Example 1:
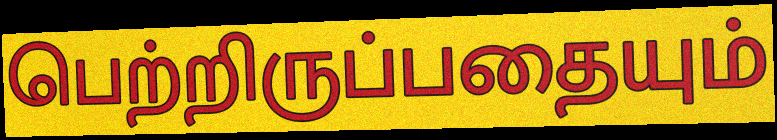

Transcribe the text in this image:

பெற்றிருப்பதையும்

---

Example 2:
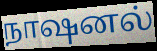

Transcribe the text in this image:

நாஷனல்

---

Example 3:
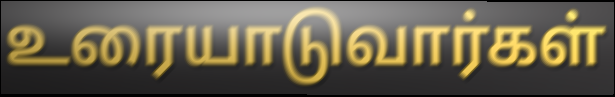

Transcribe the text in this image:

உரையாடுவார்கள்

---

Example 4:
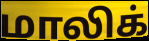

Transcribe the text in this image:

மாலிக்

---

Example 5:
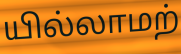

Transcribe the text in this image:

யில்லாமற்